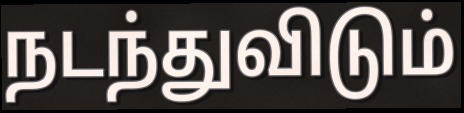
நடந்துவிடும்